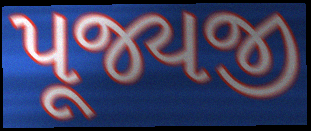
પૂજ્યજી